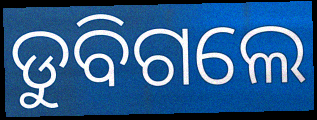
ଡୁବିଗଲେ